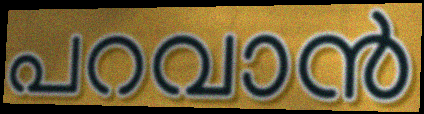
പറവാൻ